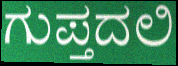
ಗುಪ್ತದಲಿ